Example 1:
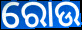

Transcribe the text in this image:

ରୋଉ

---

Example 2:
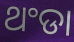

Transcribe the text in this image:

ଥଂଡା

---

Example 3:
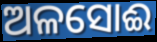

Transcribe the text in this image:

ଅଳସୋଈ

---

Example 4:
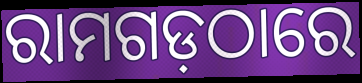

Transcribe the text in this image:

ରାମଗଡ଼ଠାରେ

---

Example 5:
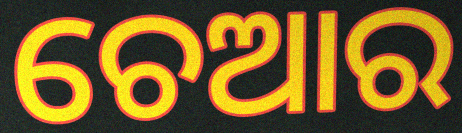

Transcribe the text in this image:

ଚେଆର